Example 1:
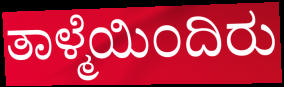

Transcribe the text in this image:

ತಾಳ್ಮೆಯಿಂದಿರು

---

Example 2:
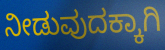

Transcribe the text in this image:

ನೀಡುವುದಕ್ಕಾಗಿ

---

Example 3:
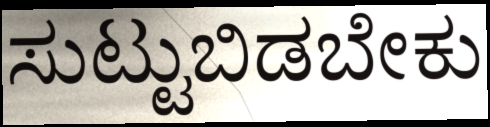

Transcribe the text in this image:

ಸುಟ್ಟುಬಿಡಬೇಕು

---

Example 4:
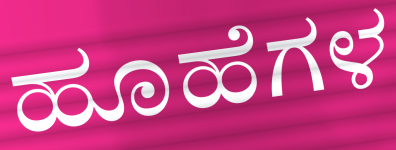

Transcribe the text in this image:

ಹೂಹೆಗಳ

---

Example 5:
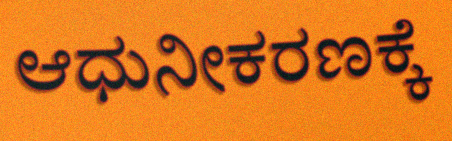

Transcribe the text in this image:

ಆಧುನೀಕರಣಕ್ಕೆ